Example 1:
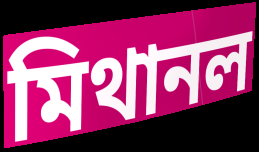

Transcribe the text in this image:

মিথানল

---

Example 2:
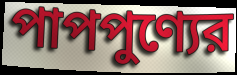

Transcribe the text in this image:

পাপপুণ্যের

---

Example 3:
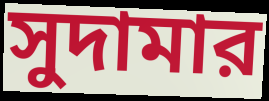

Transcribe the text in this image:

সুদামার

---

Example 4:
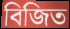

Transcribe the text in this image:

বিজিত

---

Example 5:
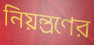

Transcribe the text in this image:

নিয়ন্ত্রণের